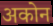
अकोन